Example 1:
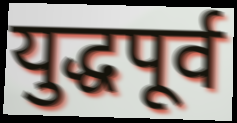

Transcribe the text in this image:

युद्धपूर्व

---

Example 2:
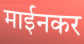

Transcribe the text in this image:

माईनकर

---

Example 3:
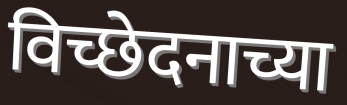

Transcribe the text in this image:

विच्छेदनाच्या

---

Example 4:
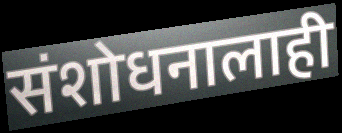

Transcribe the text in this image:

संशोधनालाही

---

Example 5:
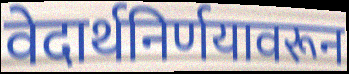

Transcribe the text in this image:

वेदार्थनिर्णयावरून